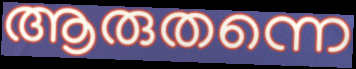
ആരുതന്നെ